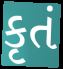
કૃતં